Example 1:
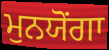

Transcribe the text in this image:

ਮੁਨਯੋਂਗਾ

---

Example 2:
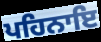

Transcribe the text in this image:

ਪਹਿਨਾਇ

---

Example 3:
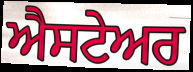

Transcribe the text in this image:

ਐਸਟੇਅਰ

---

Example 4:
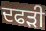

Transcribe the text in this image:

ਦਫੜੀ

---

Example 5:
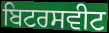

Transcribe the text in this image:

ਬਿਟਰਸਵੀਟ